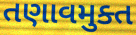
તણાવમુક્ત